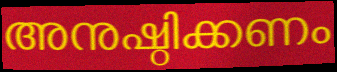
അനുഷ്ഠിക്കണം